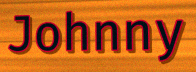
Johnny